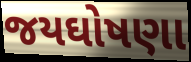
જયઘોષણા